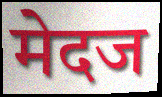
मेदज